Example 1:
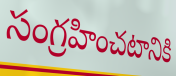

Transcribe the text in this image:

సంగ్రహించటానికి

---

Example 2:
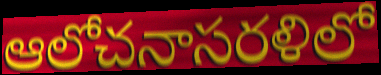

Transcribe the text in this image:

ఆలోచనాసరళిలో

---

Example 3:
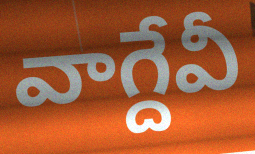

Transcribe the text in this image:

వాగ్దేవీ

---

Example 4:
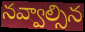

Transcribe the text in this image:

నవ్వాల్సిన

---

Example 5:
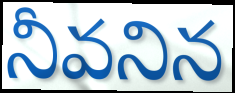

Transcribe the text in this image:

నీవనిన